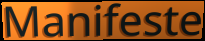
Manifeste